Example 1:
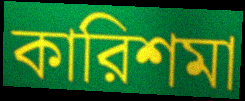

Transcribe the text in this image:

কারিশমা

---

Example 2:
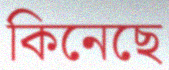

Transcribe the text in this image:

কিনেছে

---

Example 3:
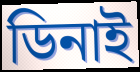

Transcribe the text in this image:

ডিনাই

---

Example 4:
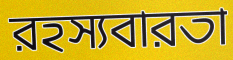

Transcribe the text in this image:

রহস্যবারতা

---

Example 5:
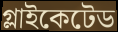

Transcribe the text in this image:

গ্লাইকেটেড